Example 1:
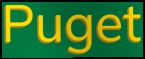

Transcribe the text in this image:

Puget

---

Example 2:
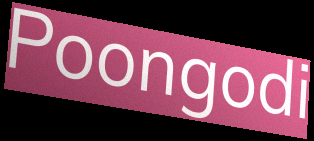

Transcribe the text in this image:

Poongodi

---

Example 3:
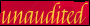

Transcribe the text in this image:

unaudited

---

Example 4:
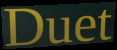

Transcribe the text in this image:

Duet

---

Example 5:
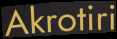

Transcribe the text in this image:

Akrotiri